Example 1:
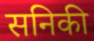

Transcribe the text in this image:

सनिकी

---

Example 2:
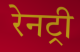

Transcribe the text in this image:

रेनट्री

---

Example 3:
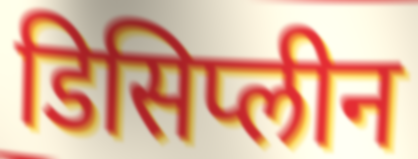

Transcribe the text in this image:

डिसिप्लीन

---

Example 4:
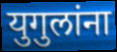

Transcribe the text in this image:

युगुलांना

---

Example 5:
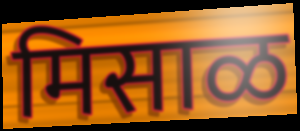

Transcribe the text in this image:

मिसाळ